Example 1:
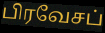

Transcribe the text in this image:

பிரவேசப்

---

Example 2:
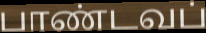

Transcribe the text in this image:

பாண்டவப்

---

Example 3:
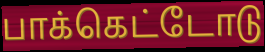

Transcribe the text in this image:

பாக்கெட்டோடு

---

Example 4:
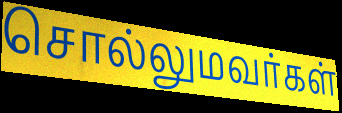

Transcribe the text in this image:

சொல்லுமவர்கள்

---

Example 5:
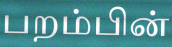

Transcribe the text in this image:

பறம்பின்